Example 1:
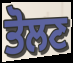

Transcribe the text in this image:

ਤੋਲਣ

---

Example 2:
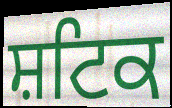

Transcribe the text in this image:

ਸ਼ਟਿਕ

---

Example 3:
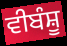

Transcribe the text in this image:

ਵੀਬੰਸ਼ੂ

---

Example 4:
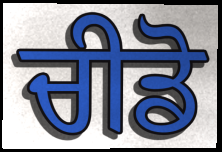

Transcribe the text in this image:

ਚੀਡੋ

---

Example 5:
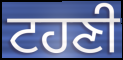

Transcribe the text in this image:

ਟਹਣੀ